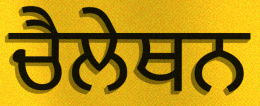
ਚੈਲੇਥਨ